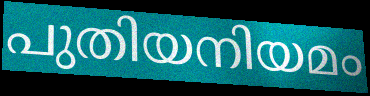
പുതിയനിയമം